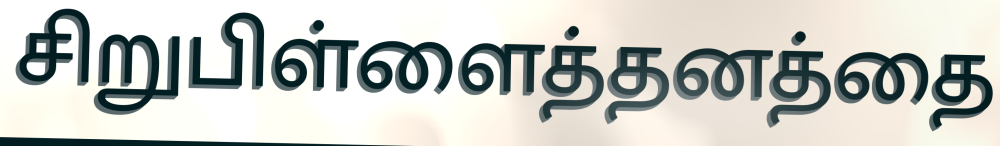
சிறுபிள்ளைத்தனத்தை